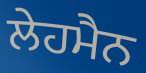
ਲੇਹਮੈਨ